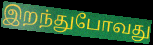
இறந்துபோவது